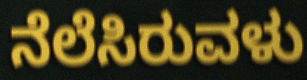
ನೆಲೆಸಿರುವಳು